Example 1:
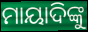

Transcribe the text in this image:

ମାୟାଦିଙ୍କୁ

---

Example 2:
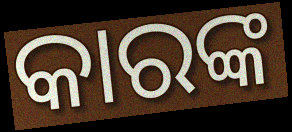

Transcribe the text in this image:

କାରଙ୍କ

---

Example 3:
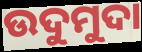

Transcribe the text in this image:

ଉଦୁମୁଦା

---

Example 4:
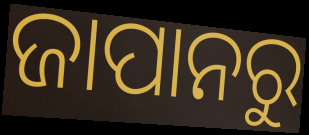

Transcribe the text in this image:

ଜାପାନରୁ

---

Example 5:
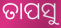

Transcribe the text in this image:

ତାପସୁ